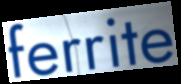
ferrite